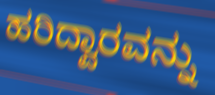
ಹರಿದ್ವಾರವನ್ನು